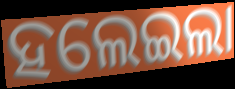
ହଲେଇଲା